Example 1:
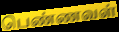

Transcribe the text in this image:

பெண்ணவள்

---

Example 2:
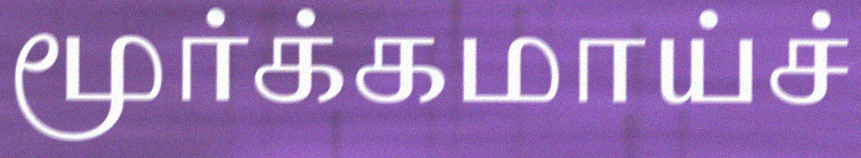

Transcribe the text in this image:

மூர்க்கமாய்ச்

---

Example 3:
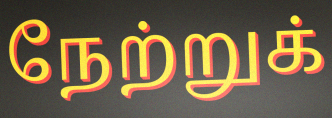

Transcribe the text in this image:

நேற்றுக்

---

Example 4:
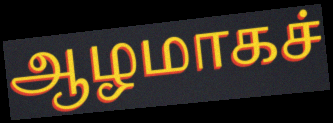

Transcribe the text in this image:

ஆழமாகச்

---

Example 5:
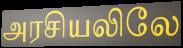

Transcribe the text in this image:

அரசியலிலே